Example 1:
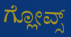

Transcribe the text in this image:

ಗ್ಲೋವ್ಸ್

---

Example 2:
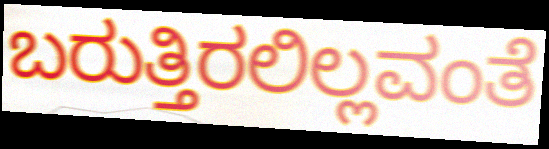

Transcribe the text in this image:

ಬರುತ್ತಿರಲಿಲ್ಲವಂತೆ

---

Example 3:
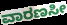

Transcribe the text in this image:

ವಾರಣಸೀ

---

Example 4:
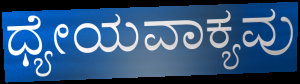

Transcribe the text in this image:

ಧ್ಯೇಯವಾಕ್ಯವು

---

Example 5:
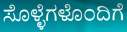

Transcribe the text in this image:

ಸೊಳ್ಳೆಗಳೊಂದಿಗೆ